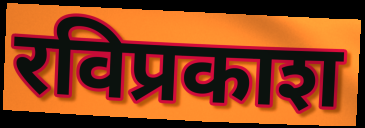
रविप्रकाश